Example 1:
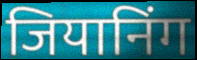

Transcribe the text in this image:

जियानिंग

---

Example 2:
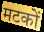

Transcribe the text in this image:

मटकों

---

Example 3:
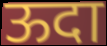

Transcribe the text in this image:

ऊदा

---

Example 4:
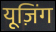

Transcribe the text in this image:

यूज़िंग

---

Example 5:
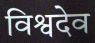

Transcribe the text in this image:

विश्वदेव